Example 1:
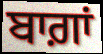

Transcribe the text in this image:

ਬਾਗ਼ਾਂ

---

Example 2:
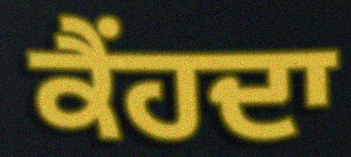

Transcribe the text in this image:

ਕੈਂਹਦਾ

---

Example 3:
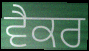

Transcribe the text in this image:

ਵੈਕਰ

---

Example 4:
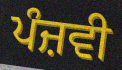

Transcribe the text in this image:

ਪੰਜ਼ਵੀ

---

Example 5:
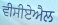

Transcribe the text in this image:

ਵੀਸੀਏਐਲ